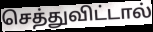
செத்துவிட்டால்